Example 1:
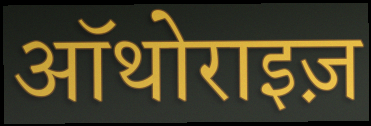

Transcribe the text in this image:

ऑथोराइज़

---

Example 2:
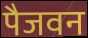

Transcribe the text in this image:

पैजवन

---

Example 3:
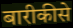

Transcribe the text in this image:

बारीकीसे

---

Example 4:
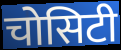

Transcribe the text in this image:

चोसिटी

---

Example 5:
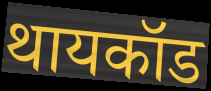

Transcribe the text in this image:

थायकॉड